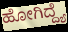
ಹೋಗಿದ್ದ್ಯೆ